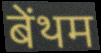
बेंथम